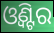
ଓ୍ଵିଣ୍ଟର